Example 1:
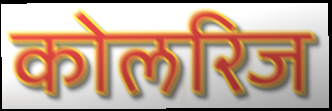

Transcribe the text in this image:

कोलरिज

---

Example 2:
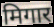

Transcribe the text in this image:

मिगार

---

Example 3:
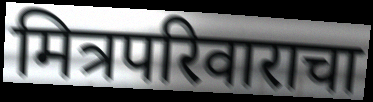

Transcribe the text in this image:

मित्रपरिवाराचा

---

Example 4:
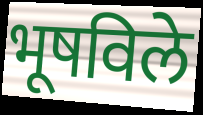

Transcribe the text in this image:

भूषविले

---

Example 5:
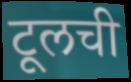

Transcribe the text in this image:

टूलची